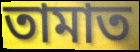
তামাত